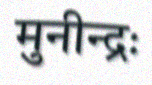
मुनीन्द्रः